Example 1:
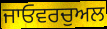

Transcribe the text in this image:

ਜਾਓਵਰਚੁਅਲ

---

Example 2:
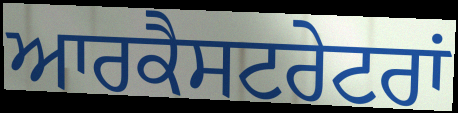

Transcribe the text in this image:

ਆਰਕੈਸਟਰੇਟਰਾਂ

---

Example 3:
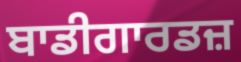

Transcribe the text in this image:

ਬਾਡੀਗਾਰਡਜ਼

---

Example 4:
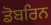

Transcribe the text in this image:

ਡੋਬਰਿਨ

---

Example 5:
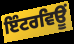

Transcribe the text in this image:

ਇੰਟਰਵਿਊਂ